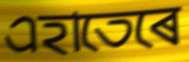
এহাতেৰে